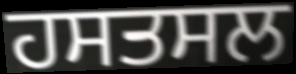
ਹਸਤਸਲ